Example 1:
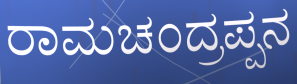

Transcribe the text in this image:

ರಾಮಚಂದ್ರಪ್ಪನ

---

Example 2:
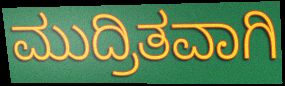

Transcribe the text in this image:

ಮುದ್ರಿತವಾಗಿ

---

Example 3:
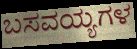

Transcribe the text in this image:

ಬಸವಯ್ಯಗಳ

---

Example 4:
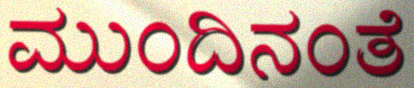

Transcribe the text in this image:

ಮುಂದಿನಂತೆ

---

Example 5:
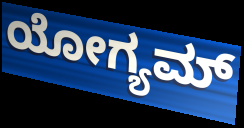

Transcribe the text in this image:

ಯೋಗ್ಯಮ್